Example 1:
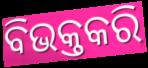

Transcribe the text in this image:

ବିଭକ୍ତକରି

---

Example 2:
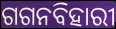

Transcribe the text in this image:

ଗଗନବିହାରୀ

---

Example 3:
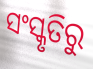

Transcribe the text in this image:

ସଂସ୍କୃତିରୁ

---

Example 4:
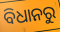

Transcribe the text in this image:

ବିଧାନରୁ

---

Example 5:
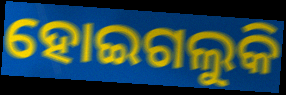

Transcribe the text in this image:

ହୋଇଗଲୁକି